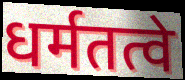
धर्मतत्वे